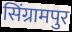
सिंग्रामपुर